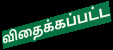
விதைக்கப்பட்ட